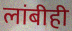
लांबीही